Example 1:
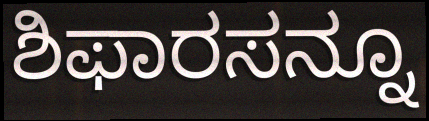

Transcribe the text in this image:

ಶಿಫಾರಸನ್ನೂ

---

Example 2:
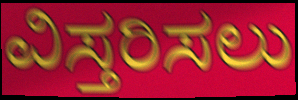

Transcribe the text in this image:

ವಿಸ್ತರಿಸಲು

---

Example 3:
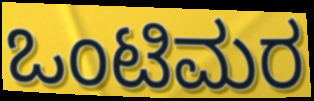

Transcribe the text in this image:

ಒಂಟಿಮರ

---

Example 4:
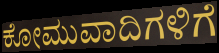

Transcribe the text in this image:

ಕೋಮುವಾದಿಗಳಿಗೆ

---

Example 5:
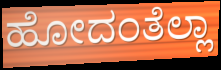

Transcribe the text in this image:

ಹೋದಂತೆಲ್ಲಾ